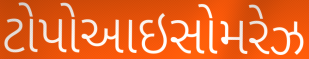
ટોપોઆઇસોમરેઝ